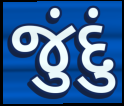
જુંદું